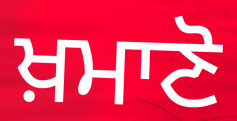
ਖ਼ਮਾਣੋ